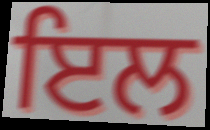
ਇਲ